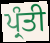
ਪ੍ਰੰਤੀ